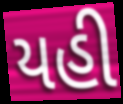
યહી